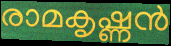
രാമകൃഷ്ണൻ